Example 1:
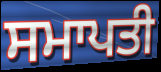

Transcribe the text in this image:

ਸਮਾਪਤੀ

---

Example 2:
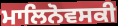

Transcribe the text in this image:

ਮਾਲਿਨੋਵਸਕੀ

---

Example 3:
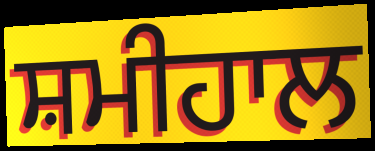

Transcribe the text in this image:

ਸ਼ਮੀਹਾਲ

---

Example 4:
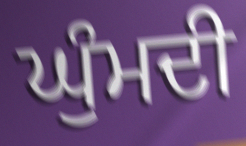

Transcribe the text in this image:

ਘੁੰਮਦੀ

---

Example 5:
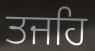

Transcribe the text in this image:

ਤਜਹਿ